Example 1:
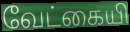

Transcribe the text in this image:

வேட்கையி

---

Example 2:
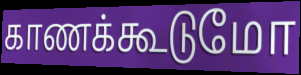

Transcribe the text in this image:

காணக்கூடுமோ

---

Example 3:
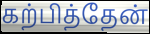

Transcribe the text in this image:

கற்பித்தேன்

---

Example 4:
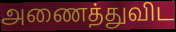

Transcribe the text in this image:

அணைத்துவிட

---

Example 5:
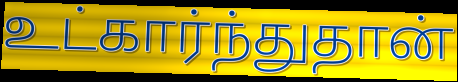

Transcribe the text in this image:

உட்கார்ந்துதான்